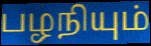
பழநியும்